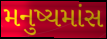
મનુષ્યમાંસ